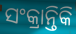
ସଂକ୍ରାନ୍ତିକି